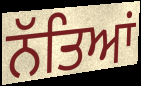
ਨੱਤਿਆਂ